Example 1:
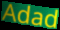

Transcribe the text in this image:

Adad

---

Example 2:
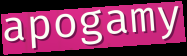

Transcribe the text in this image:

apogamy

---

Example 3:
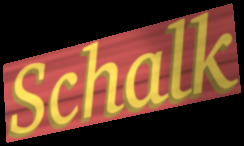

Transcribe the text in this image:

Schalk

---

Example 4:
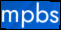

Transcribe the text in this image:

mpbs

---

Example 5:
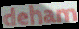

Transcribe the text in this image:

deham